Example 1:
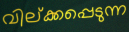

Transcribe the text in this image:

വില്ക്കപ്പെടുന്ന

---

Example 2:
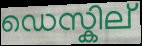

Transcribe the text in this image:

ഡെസ്കില്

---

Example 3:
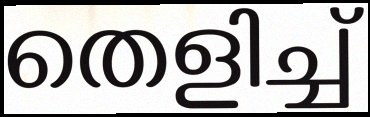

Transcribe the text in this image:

തെളിച്ച്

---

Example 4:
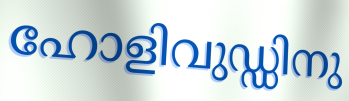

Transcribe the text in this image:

ഹോളിവുഡ്ഡിനു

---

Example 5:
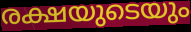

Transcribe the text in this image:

രക്ഷയുടെയും